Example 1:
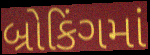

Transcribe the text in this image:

બ્રોકિંગમાં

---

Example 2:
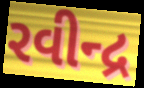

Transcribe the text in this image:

રવીન્દ્ર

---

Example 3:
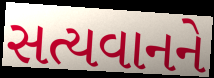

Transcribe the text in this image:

સત્યવાનને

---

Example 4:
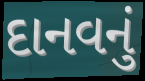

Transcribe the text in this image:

દાનવનું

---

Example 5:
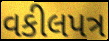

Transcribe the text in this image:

વકીલપત્ર